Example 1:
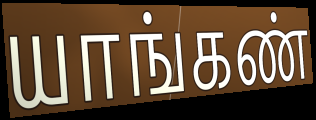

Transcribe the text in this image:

யாங்கண்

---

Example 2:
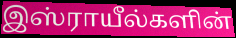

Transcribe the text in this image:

இஸ்ராயீல்களின்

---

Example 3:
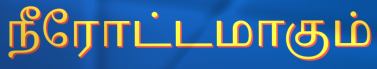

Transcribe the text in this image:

நீரோட்டமாகும்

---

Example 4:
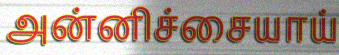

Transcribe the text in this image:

அன்னிச்சையாய்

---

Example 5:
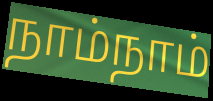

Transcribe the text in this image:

நாம்நாம்